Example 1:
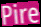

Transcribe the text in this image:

Pire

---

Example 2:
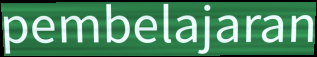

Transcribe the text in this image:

pembelajaran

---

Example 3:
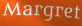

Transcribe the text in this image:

Margret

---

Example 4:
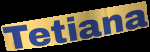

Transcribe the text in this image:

Tetiana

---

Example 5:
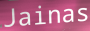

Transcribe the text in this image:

Jainas